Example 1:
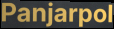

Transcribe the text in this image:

Panjarpol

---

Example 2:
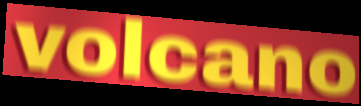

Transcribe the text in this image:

volcano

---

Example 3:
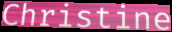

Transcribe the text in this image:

Christine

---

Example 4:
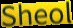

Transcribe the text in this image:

Sheol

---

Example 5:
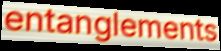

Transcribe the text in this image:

entanglements